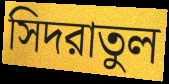
সিদরাতুল